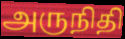
அருநிதி